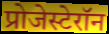
प्रोजेस्टेरॉन